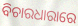
ବିଚାରଧାରାରେ